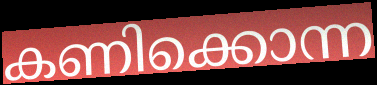
കണിക്കൊന്ന